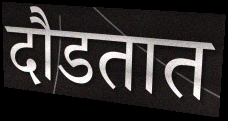
दौडतात